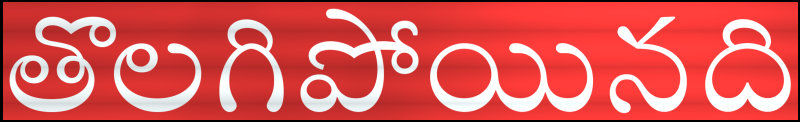
తొలగిపోయినది